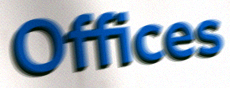
Offices